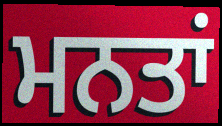
ਮਨਤਾਂ